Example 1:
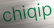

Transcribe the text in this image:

chiqip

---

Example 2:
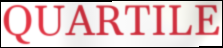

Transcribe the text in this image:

QUARTILE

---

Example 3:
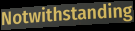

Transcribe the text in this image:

Notwithstanding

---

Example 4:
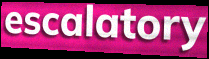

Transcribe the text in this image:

escalatory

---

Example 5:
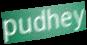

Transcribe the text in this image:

pudhey